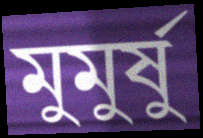
মুমুর্ষু